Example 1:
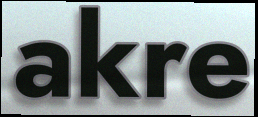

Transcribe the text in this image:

akre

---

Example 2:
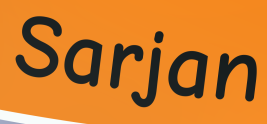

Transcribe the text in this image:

Sarjan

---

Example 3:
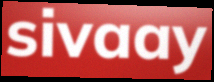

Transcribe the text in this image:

sivaay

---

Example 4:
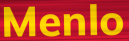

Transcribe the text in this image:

Menlo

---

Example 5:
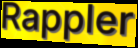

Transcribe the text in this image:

Rappler